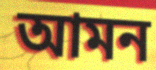
আমন